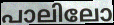
പാലിലോ